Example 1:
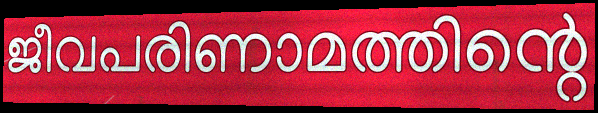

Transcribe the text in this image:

ജീവപരിണാമത്തിന്റെ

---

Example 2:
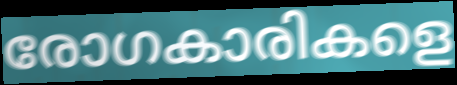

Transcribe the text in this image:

രോഗകാരികളെ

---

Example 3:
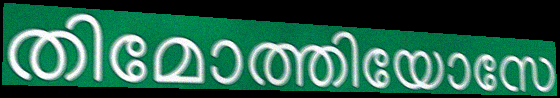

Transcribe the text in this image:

തിമോത്തിയോസേ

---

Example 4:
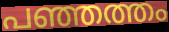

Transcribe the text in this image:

പഞ്ഞത്തം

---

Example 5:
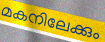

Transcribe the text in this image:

മകനിലേക്കും